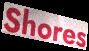
Shores